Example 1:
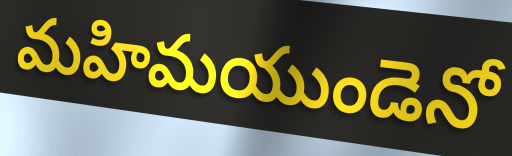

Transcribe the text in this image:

మహిమయుండెనో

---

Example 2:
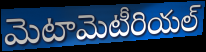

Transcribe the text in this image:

మెటామెటీరియల్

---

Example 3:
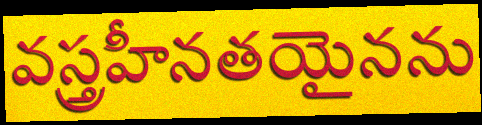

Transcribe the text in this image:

వస్త్రహీనతయైనను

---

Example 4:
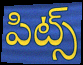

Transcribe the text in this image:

పిట్స్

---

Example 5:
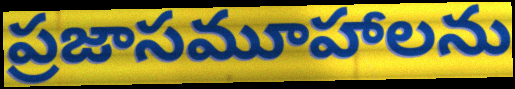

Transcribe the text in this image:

ప్రజాసమూహాలను